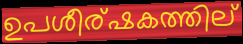
ഉപശീര്ഷകത്തില്